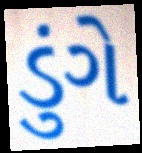
ડુંગે